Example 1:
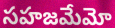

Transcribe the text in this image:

సహజమేమో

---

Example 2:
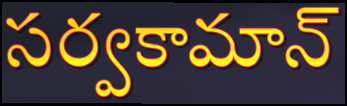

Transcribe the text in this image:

సర్వకామాన్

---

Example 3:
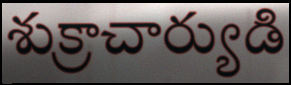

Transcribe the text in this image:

శుక్రాచార్యుడి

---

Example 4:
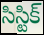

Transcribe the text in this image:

సిస్టిక్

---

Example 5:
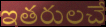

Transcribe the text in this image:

ఇతరులచే